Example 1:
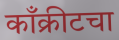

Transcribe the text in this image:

काँक्रीटचा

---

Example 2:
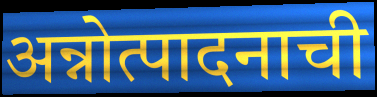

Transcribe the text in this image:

अन्नोत्पादनाची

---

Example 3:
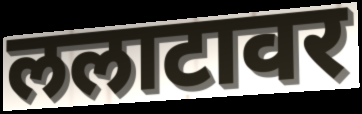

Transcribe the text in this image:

ललाटावर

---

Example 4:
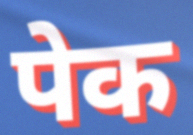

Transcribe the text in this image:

पेक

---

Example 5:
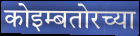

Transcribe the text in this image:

कोइम्बतोरच्या